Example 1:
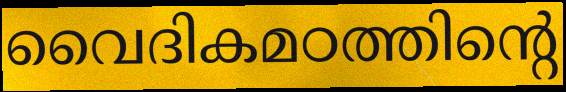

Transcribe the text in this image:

വൈദികമഠത്തിന്റെ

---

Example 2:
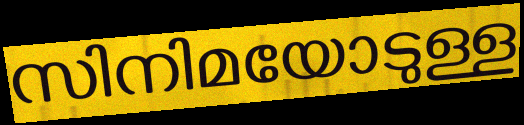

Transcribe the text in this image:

സിനിമയോടുള്ള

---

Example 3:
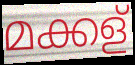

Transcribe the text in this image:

മക്കള്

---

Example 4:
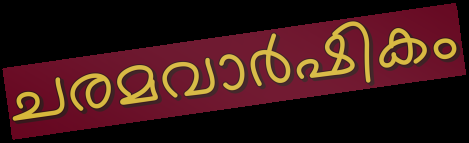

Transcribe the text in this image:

ചരമവാർഷികം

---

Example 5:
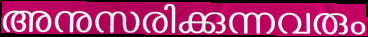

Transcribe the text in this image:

അനുസരിക്കുന്നവരും